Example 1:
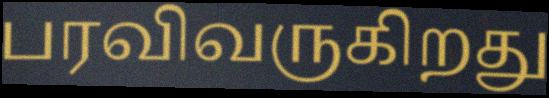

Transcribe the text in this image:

பரவிவருகிறது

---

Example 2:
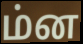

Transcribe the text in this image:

ம்ன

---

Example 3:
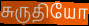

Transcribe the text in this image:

சுருதியோ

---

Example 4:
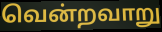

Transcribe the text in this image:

வென்றவாறு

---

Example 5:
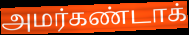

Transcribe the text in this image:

அமர்கண்டாக்